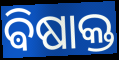
ଵିଷାକ୍ତ